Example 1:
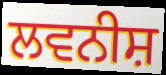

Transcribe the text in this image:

ਲਵਨੀਸ਼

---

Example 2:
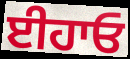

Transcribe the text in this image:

ਈਹਾਓ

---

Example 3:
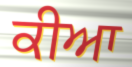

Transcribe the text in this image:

ਕੀਆ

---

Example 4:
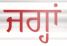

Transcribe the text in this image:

ਜਗ੍ਹਾਂ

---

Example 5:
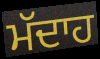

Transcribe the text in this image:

ਮੱਦਾਹ